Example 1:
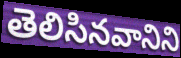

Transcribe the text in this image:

తెలిసినవానిని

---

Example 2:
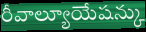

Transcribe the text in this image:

రీవాల్యూయేషన్కు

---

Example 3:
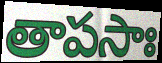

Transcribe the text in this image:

తాపసాః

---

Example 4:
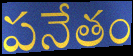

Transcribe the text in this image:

పనేతం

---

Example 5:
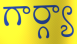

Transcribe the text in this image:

గార్గ్యా